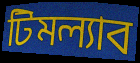
টিমল্যাব